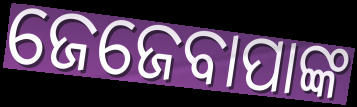
ଜେଜେବାପାଙ୍କ